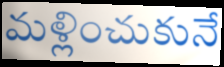
మళ్లించుకునే